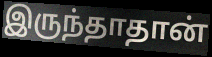
இருந்தாதான்